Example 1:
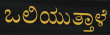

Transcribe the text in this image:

ಒಲಿಯುತ್ತಾಳೆ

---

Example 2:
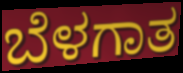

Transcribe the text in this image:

ಬೆಳಗಾತ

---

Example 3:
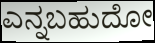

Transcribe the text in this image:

ಎನ್ನಬಹುದೋ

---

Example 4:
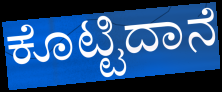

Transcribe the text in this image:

ಕೊಟ್ಟಿದಾನೆ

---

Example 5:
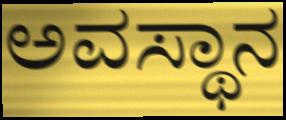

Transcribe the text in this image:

ಅವಸ್ಥಾನ